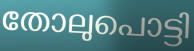
തോലുപൊട്ടി